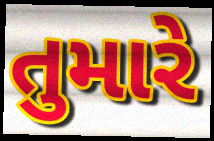
તુમારે